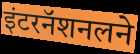
इंटरनॅशनलने